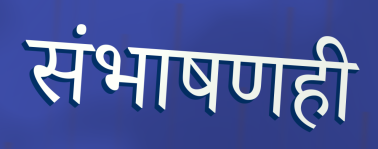
संभाषणही